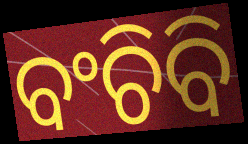
ବଂଚିବି